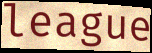
league